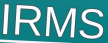
IRMS